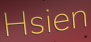
Hsien